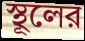
স্থূলের